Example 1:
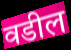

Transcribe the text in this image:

वडील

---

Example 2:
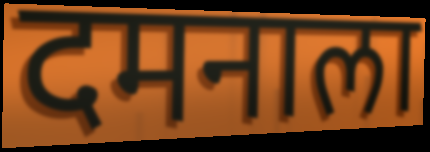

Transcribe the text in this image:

दमनाला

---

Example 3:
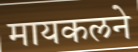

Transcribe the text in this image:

मायकलने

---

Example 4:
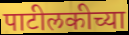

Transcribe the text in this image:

पाटीलकीच्या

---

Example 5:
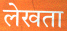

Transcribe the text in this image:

लेखता